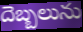
దెబ్బలును